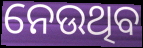
ନେଉଥିବ